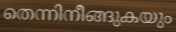
തെന്നിനീങ്ങുകയും